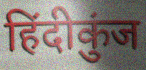
हिंदीकुंज